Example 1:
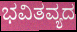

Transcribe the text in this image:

ಭವಿತವ್ಯದ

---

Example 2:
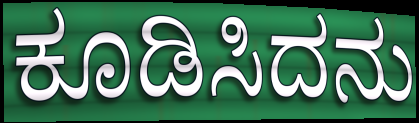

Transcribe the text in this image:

ಕೂಡಿಸಿದನು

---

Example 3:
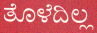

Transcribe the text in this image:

ತೊಳೆದಿಲ್ಲ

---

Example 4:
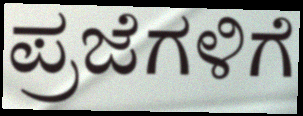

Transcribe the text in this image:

ಪ್ರಜೆಗಳಿಗೆ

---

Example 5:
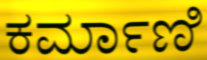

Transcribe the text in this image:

ಕರ್ಮಾಣಿ